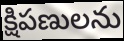
క్షిపణులను